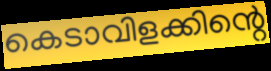
കെടാവിളക്കിന്റെ